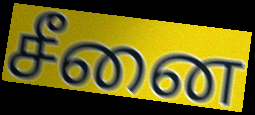
சீனை